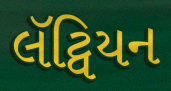
લૅટ્વિયન